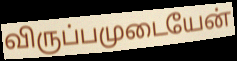
விருப்பமுடையேன்